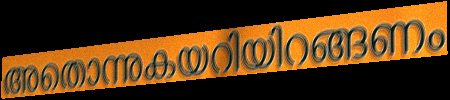
അതൊന്നുകയറിയിറങ്ങണം